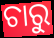
ଚାରୁ